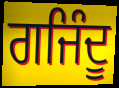
ਗਜਿੰਦੂ